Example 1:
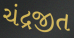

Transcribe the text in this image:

ચંદ્રજીત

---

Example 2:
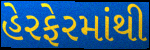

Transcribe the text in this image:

હેરફેરમાંથી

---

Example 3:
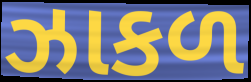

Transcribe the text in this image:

ઝાકળ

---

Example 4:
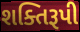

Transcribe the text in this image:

શક્તિરૂપી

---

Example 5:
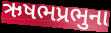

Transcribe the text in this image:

ઋષભપ્રભુના